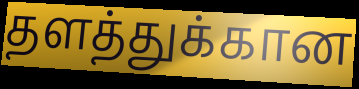
தளத்துக்கான